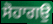
ਸੋਹਾਗਉ